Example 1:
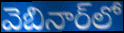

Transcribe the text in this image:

వెబినార్‌లో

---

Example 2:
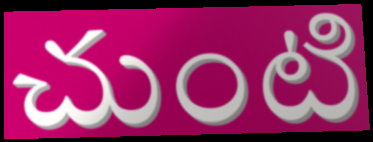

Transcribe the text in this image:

చుంటి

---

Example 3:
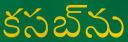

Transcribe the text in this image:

కసబ్‌ను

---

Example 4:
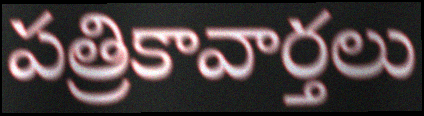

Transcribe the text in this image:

పత్రికావార్తలు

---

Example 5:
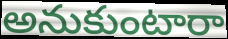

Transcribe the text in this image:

అనుకుంటారా